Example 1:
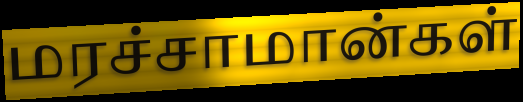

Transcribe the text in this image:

மரச்சாமான்கள்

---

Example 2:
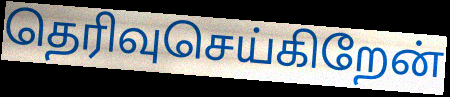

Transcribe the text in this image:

தெரிவுசெய்கிறேன்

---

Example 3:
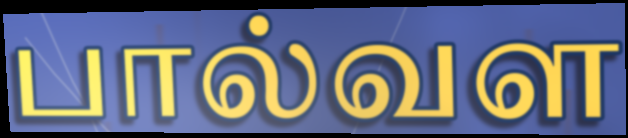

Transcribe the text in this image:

பால்வள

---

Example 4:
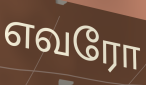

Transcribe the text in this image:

எவரோ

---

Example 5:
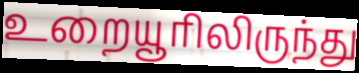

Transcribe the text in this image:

உறையூரிலிருந்து